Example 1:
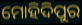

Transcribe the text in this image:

ମୋହିଦିପୁର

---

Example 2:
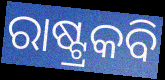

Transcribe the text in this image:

ରାଷ୍ଟ୍ରକବି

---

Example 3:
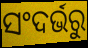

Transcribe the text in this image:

ସଂଦର୍ଭରୁ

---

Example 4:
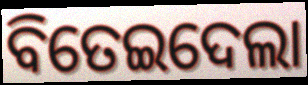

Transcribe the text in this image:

ବିତେଇଦେଲା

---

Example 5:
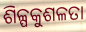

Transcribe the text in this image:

ଶିଳ୍ପକୁଶଳତା